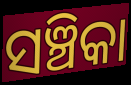
ସଞ୍ଚିକା